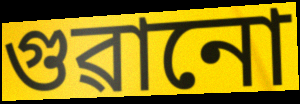
গুৱানো